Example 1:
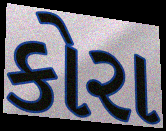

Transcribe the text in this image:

કોરા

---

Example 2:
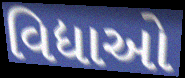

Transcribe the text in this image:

વિદ્યાઓ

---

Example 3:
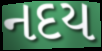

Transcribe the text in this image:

નદય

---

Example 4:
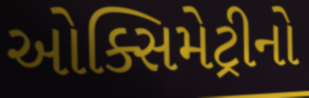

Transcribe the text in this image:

ઓક્સિમેટ્રીનો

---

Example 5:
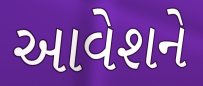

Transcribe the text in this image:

આવેશને